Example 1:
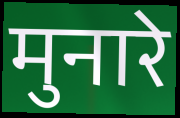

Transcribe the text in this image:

मुनारे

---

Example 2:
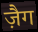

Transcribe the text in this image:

ज़ैग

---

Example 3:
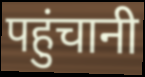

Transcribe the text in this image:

पहुंचानी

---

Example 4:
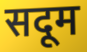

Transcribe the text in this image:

सदूम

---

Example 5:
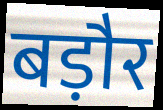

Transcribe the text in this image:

बड़ौर